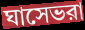
ঘাসেভরা